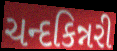
ચન્દકિન્નરી